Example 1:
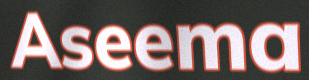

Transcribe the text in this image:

Aseema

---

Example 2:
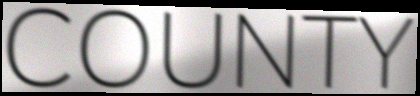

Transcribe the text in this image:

COUNTY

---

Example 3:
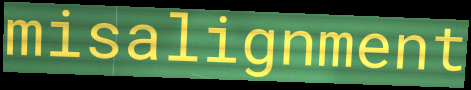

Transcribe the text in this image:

misalignment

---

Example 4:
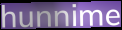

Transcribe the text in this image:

hunnime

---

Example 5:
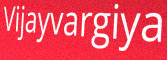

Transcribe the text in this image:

Vijayvargiya